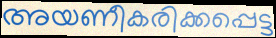
അയണീകരിക്കപ്പെട്ട